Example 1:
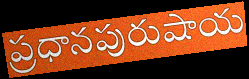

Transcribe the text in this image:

ప్రధానపురుషాయ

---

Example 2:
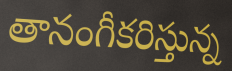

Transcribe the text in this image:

తానంగీకరిస్తున్న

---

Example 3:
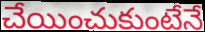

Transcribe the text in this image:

చేయించుకుంటేనే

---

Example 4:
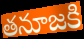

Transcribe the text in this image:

తనూజకి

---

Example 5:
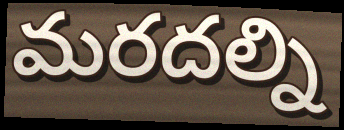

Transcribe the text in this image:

మరదల్ని